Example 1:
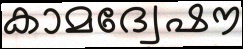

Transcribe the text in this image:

കാമദ്വേഷൗ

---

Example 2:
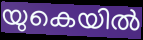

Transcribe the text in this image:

യുകെയിൽ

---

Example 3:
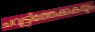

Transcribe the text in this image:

ചവുട്ടിത്തേക്കുകയും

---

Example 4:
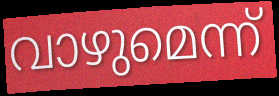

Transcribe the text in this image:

വാഴുമെന്ന്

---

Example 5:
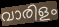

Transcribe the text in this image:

വാരിളം